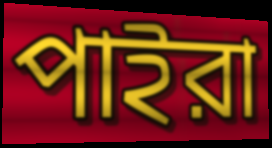
পাইরা